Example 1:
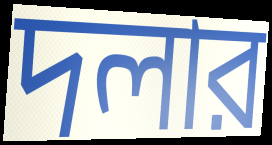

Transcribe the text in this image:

দলার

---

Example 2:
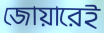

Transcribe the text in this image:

জোয়ারেই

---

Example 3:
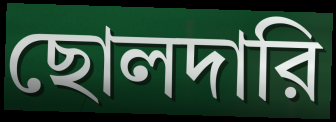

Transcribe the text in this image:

ছোলদারি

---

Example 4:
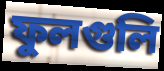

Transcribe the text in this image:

ফুলগুলি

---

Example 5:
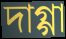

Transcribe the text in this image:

দাগ্গা